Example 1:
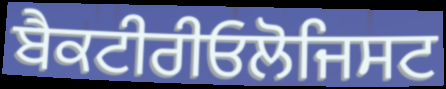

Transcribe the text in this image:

ਬੈਕਟੀਰੀਓਲੋਜਿਸਟ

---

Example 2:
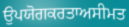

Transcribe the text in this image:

ਉਪਯੋਗਕਰਤਾਅਸੀਮਤ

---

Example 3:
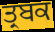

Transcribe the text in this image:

ਤ੍ਰਬਕ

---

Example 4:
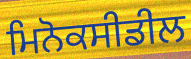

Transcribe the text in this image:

ਮਿਨੋਕਸੀਡੀਲ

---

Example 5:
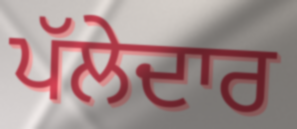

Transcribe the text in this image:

ਪੱਲੇਦਾਰ